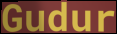
Gudur